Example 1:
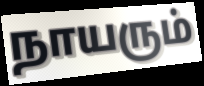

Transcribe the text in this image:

நாயரும்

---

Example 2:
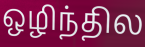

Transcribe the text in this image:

ஒழிந்தில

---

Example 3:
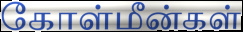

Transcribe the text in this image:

கோள்மீன்கள்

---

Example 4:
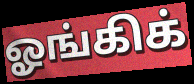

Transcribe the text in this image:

ஓங்கிக்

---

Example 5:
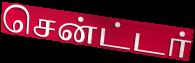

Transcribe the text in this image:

சென்ட்டர்